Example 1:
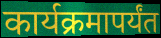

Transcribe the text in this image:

कार्यक्रमापर्यंत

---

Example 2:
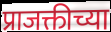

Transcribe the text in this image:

प्राजक्तीच्या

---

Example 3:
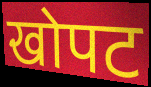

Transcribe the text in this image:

खोपट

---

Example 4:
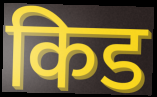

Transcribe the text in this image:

किड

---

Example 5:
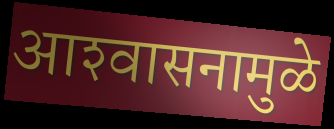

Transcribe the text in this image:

आश्वासनामुळे